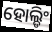
ହୋଲ୍ଡିଂ